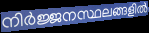
നിർജ്ജനസ്ഥലങ്ങളിൽ